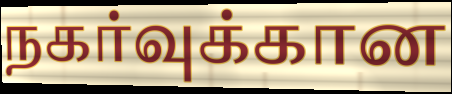
நகர்வுக்கான